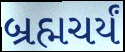
બ્રહ્મચર્યં